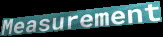
Measurement